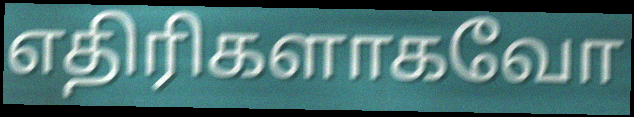
எதிரிகளாகவோ